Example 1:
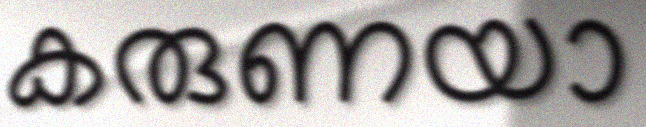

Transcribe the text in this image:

കരുണയാ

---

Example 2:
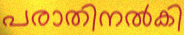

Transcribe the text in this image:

പരാതിനൽകി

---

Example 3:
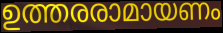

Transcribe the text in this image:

ഉത്തരരാമായണം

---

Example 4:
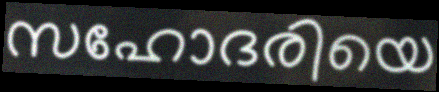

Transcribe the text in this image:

സഹോദരിയെ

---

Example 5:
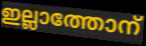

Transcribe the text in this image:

ഇല്ലാത്തോന്